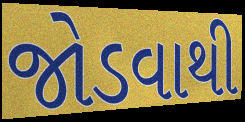
જોડવાથી